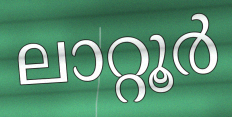
ലാറ്റൂർ